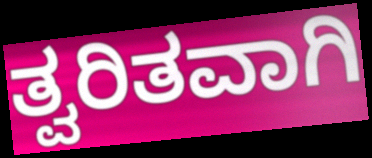
ತ್ವರಿತವಾಗಿ